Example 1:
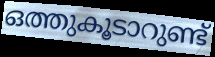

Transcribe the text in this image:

ഒത്തുകൂടാറുണ്ട്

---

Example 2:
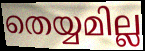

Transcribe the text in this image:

തെയ്യമില്ല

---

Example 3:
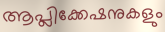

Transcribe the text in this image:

ആപ്ലിക്കേഷനുകളും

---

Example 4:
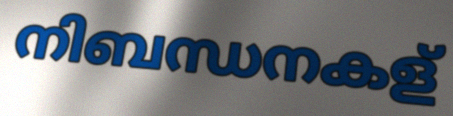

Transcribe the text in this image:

നിബന്ധനകള്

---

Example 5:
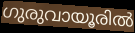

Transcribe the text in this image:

ഗുരുവായൂരിൽ